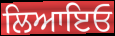
ਲਿਆਇਓ